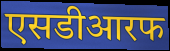
एसडीआरफ